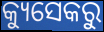
କ୍ୟୁସେକରୁ